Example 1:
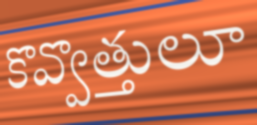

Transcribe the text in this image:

కొవ్వొత్తులూ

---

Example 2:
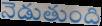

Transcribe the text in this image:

నెడుతుంది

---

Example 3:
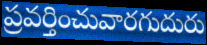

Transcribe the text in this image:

ప్రవర్తించువారగుదురు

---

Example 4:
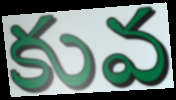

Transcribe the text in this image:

కువ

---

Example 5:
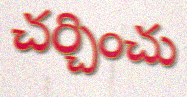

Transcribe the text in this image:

చర్చించు